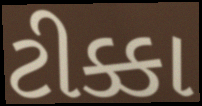
ટીક્કા